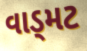
વાડ્મટ